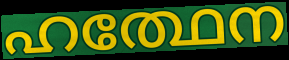
ഹത്ഥേന